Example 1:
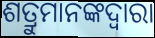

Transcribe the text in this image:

ଶତ୍ରୁମାନଙ୍କଦ୍ଵାରା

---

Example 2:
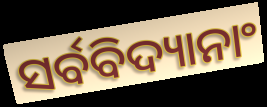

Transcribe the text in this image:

ସର୍ବବିଦ୍ୟାନାଂ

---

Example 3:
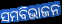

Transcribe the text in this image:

ସମବିଭାଜନ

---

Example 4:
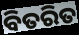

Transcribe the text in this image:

ବିତରିତ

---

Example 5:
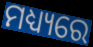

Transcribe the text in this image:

ମଧ୍ୟ୍ୟରେ